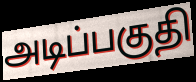
அடிப்பகுதி